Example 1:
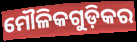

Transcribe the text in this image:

ମୌଳିକଗୁଡ଼ିକର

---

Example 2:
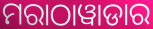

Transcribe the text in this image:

ମରାଠାୱାଡାର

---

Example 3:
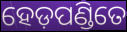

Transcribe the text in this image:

ହେଡ଼ପଣ୍ଡିତେ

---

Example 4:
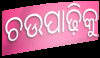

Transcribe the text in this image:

ଚଉପାଢ଼ିକୁ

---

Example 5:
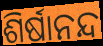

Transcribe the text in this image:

ଶିର୍ଷାନନ୍ଦ